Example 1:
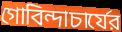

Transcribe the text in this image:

গোবিন্দাচার্যের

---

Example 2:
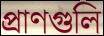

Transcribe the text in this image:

প্রাণগুলি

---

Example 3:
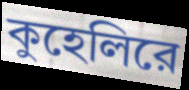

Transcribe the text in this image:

কুহেলিরে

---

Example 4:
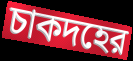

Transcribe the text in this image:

চাকদহের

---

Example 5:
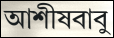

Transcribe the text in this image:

আশীষবাবু